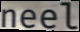
neel